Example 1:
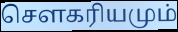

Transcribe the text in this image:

சௌகரியமும்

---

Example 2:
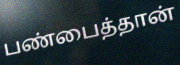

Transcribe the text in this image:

பண்பைத்தான்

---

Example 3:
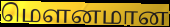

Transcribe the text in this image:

மௌனமான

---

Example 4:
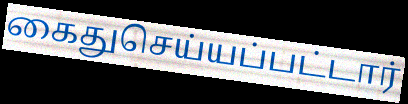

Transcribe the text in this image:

கைதுசெய்யப்பட்டார்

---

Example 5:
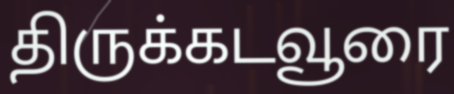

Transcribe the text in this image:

திருக்கடவூரை